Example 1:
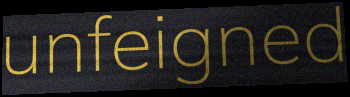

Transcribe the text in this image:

unfeigned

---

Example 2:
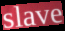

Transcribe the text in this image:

slave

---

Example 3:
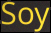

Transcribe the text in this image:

Soy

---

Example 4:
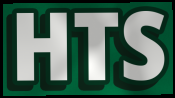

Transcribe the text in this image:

HTS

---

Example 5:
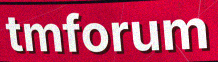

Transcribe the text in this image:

tmforum